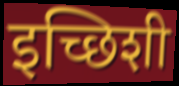
इच्छिशी